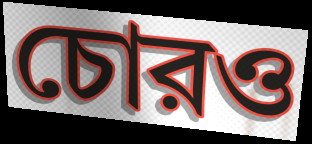
চোরও